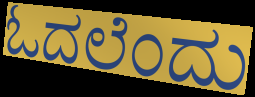
ಓದಲೆಂದು